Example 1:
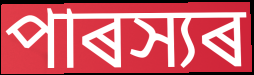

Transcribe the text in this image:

পাৰস্যৰ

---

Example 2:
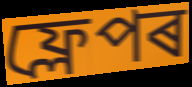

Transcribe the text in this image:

ফ্লেপৰ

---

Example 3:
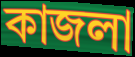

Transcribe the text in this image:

কাজলা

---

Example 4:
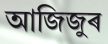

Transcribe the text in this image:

আজিজুৰ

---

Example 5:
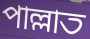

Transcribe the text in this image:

পাল্লাত